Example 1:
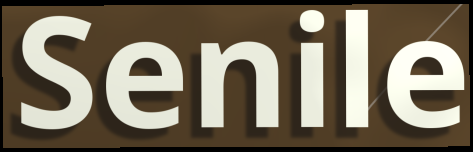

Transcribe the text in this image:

Senile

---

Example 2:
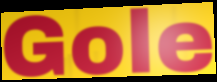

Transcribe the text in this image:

Gole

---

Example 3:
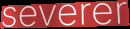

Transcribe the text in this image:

severer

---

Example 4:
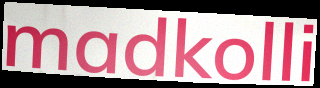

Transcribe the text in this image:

madkolli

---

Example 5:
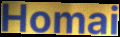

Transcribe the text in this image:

Homai